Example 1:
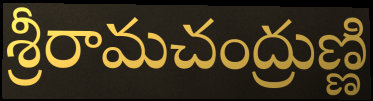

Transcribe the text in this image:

శ్రీరామచంద్రుణ్ణి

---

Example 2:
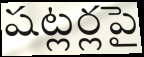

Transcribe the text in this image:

షట్లర్లపై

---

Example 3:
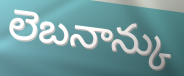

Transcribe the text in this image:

లెబనాన్కు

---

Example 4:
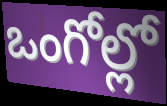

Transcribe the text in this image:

ఒంగోల్లో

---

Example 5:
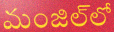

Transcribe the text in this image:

మంజిల్‌లో